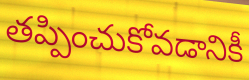
తప్పించుకోవడానికీ